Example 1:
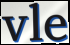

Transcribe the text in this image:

vle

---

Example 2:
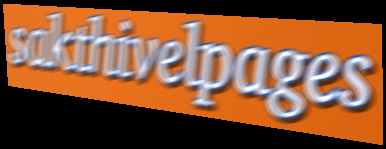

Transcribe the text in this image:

sakthivelpages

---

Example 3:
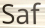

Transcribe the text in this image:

Saf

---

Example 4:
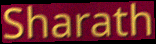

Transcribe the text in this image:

Sharath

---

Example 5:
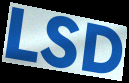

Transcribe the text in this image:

LSD